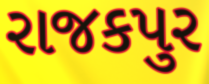
રાજકપુર